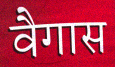
वैगास